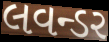
લવન્ડર